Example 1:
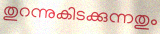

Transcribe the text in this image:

തുറന്നുകിടക്കുന്നതും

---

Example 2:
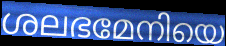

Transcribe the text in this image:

ശലഭമേനിയെ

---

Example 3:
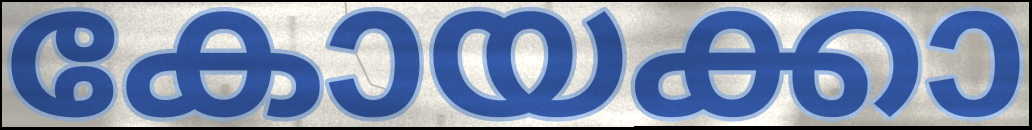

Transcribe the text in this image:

കോയക്കാ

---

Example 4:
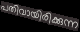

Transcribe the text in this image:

പതിവായിരിക്കുന്ന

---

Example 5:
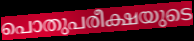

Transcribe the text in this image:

പൊതുപരീക്ഷയുടെ